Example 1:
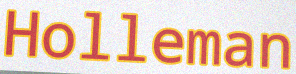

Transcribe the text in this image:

Holleman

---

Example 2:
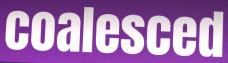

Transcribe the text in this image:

coalesced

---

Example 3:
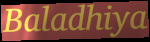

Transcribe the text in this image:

Baladhiya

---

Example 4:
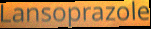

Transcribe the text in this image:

Lansoprazole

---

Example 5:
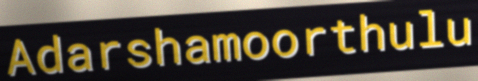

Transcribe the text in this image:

Adarshamoorthulu